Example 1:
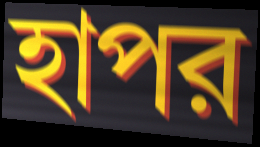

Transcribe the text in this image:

হাপর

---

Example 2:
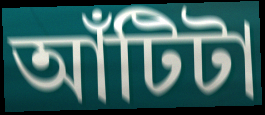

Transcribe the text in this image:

আঁটিটা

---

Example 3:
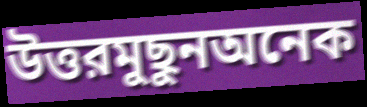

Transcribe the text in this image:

উত্তরমুছুনঅনেক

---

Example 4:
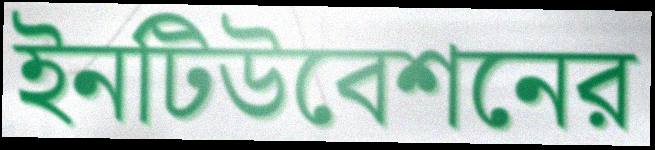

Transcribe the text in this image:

ইনটিউবেশনের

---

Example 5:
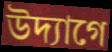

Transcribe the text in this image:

উদ্যাগে